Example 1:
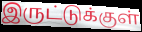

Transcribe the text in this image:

இருட்டுக்குள்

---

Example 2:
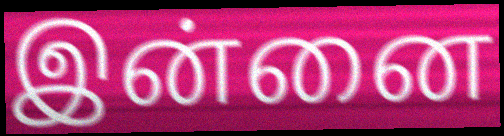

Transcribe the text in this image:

இன்னை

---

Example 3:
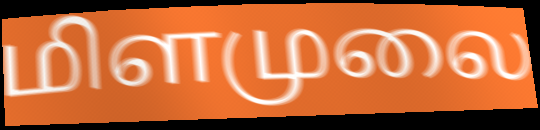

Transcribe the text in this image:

மிளமுலை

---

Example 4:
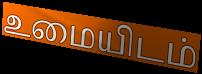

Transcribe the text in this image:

உமையிடம்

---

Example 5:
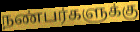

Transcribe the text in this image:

நண்பர்களுக்கு